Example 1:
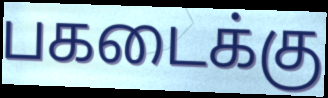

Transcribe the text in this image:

பகடைக்கு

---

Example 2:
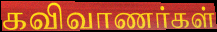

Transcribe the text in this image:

கவிவாணர்கள்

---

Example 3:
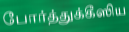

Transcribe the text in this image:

போர்த்துக்கீஸிய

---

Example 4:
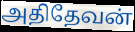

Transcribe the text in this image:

அதிதேவன்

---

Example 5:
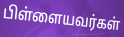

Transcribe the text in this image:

பிள்ளையவர்கள்